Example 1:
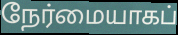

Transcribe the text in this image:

நேர்மையாகப்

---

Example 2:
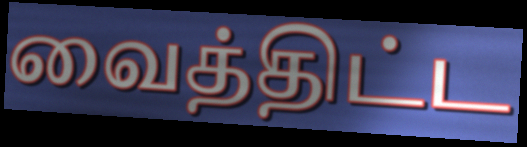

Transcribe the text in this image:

வைத்திட்ட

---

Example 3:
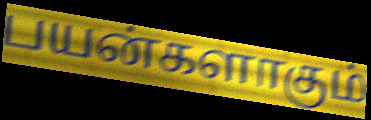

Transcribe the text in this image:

பயன்களாகும்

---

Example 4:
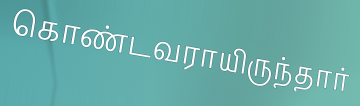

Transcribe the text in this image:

கொண்டவராயிருந்தார்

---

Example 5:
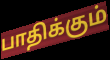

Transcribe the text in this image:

பாதிக்கும்